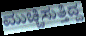
ಮುಚ್ಚಿಸುತ್ತಿದ್ದ